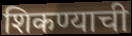
शिकण्याची